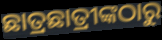
ଛାତ୍ରଛାତ୍ରୀଙ୍କଠାରୁ